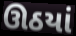
ઊઠયાં